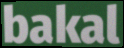
bakal